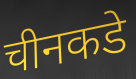
चीनकडे